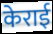
केराई